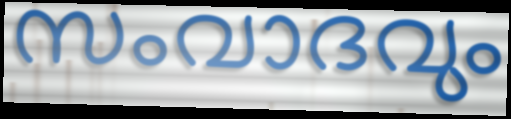
സംവാദവും